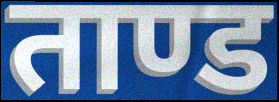
ताण्ड